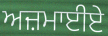
ਅਜ਼ਮਾਈਏ